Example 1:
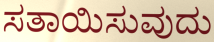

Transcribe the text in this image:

ಸತಾಯಿಸುವುದು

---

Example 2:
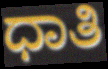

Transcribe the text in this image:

ಧಾತಿ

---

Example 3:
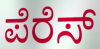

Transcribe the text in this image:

ಪೆರೆಸ್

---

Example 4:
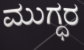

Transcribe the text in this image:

ಮುಗ್ಧರ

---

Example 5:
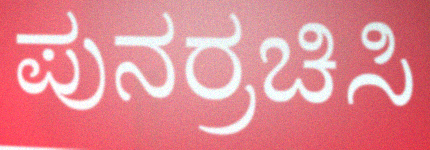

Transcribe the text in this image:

ಪುನರ್ರಚಿಸಿ